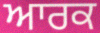
ਆਰਕ